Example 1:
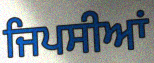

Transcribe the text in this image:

ਜਿਪਸੀਆਂ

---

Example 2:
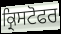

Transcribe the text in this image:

ਕ੍ਰਿਸਟੋਫਰ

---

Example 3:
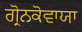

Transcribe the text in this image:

ਗ੍ਰੋਨਕੋਵਾਯਾ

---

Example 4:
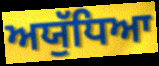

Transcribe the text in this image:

ਅਯੁੱਧਿਆ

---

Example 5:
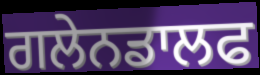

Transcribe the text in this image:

ਗਲੇਨਡਾਲਫ